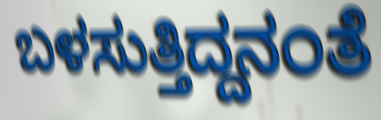
ಬಳಸುತ್ತಿದ್ದನಂತೆ